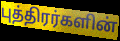
புத்திரர்களின்